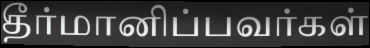
தீர்மானிப்பவர்கள்